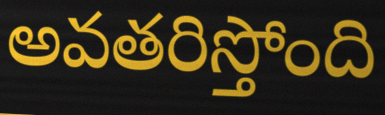
అవతరిస్తోంది